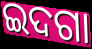
ଇଦଗା